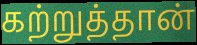
கற்றுத்தான்